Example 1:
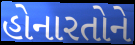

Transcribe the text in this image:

હોનારતોને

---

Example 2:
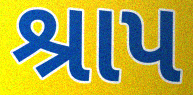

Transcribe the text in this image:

શ્રાપ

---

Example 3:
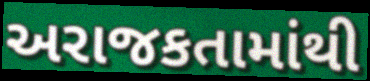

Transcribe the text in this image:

અરાજકતામાંથી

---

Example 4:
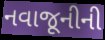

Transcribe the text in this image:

નવાજૂનીની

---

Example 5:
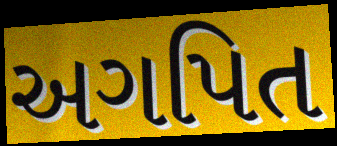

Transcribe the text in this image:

અગપિત